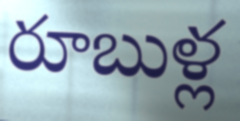
రూబుళ్ల